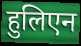
हुलिएन